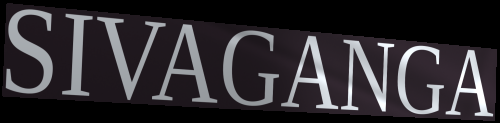
SIVAGANGA